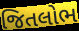
જિતલોભ